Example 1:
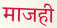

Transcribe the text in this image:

माजही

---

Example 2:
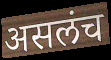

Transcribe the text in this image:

असलंच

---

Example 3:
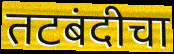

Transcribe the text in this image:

तटबंदीचा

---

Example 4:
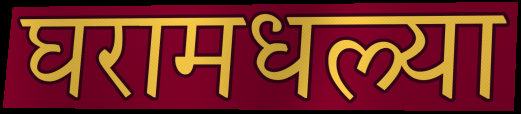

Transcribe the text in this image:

घरामधल्या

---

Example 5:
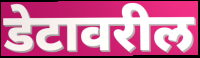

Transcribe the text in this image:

डेटावरील